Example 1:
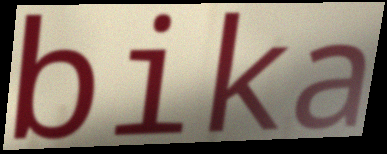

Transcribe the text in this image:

bika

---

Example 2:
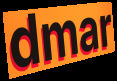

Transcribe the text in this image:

dmar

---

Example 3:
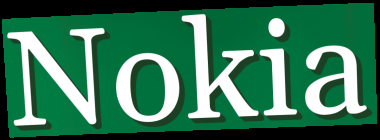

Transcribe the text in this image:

Nokia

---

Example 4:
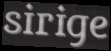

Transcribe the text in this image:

sirige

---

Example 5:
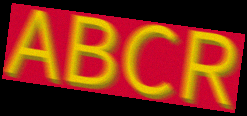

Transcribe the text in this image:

ABCR